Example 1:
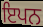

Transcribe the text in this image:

ਇਪਨ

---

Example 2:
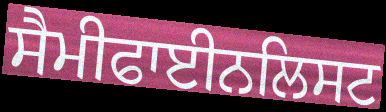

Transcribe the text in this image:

ਸੈਮੀਫਾਈਨਲਿਸਟ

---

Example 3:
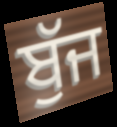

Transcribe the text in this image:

ਬੁੱਜ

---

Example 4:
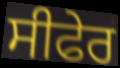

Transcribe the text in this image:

ਸੀਫੇਰ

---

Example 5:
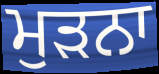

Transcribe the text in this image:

ਮੁੜਨਾ